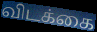
விடக்கை